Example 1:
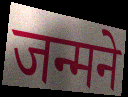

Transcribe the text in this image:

जन्मने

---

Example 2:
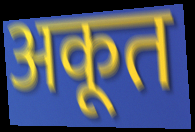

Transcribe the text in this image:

अकूत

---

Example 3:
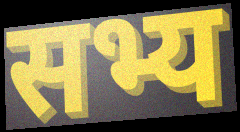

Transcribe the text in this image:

सभ्य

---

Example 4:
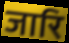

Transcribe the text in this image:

जारि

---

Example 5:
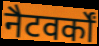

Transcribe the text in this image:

नैटवर्कों